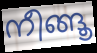
നീങ്ങൂ